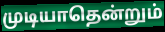
முடியாதென்றும்